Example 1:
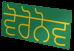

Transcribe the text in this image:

ਵੋਰੋਨੋਵ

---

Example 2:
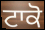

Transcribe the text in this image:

ਟਾਕੋ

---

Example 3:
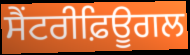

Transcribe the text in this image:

ਸੈਂਟਰੀਫ਼ਿਊਗਲ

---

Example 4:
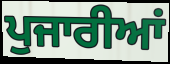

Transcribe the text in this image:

ਪੁਜਾਰੀਆਂ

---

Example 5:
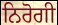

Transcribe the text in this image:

ਨਿਰੋਗੀ